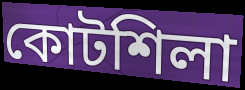
কোটশিলা